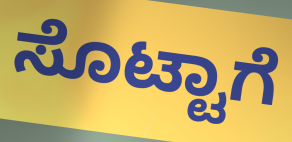
ಸೊಟ್ಟಾಗೆ